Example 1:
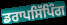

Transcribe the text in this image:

ਡਰਾਪਸਿੱਪਿੰਗ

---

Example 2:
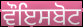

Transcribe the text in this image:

ਵੌਇਸਬੋਟ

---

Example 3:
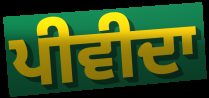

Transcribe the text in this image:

ਪੀਵੀਦਾ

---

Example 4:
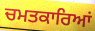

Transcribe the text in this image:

ਚਮਤਕਾਰਿਆਂ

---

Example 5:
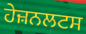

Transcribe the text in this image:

ਹੇਜ਼ਨਲਟਸ